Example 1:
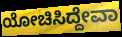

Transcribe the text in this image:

ಯೋಚಿಸಿದ್ದೇವಾ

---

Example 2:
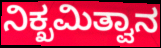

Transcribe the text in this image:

ನಿಕ್ಖಮಿತ್ವಾನ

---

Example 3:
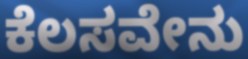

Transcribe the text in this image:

ಕೆಲಸವೇನು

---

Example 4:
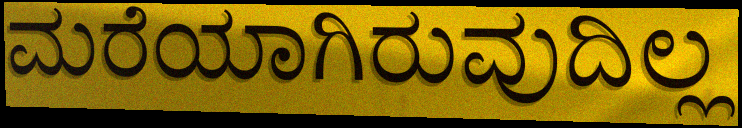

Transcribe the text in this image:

ಮರೆಯಾಗಿರುವುದಿಲ್ಲ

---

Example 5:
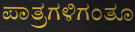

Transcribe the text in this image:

ಪಾತ್ರಗಳಿಗಂತೂ